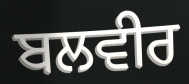
ਬਲਵੀਰ